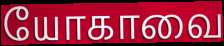
யோகாவை